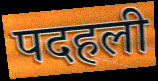
पदहली